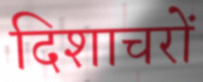
दिशाचरों